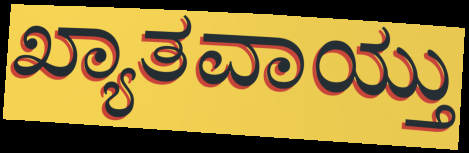
ಖ್ಯಾತವಾಯ್ತು